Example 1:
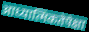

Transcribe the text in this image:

आध्यात्मिकतेपेक्षा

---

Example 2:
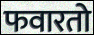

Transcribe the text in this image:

फवारतो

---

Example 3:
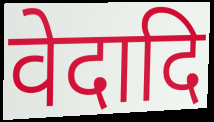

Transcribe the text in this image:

वेदादि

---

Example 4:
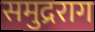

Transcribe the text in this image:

समुद्रराग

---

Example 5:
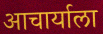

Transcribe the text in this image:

आचार्याला